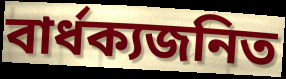
বার্ধক্যজনিত